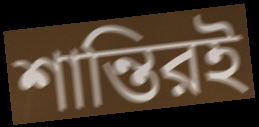
শান্তিরই